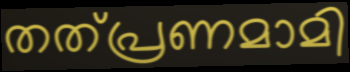
തത്പ്രണമാമി